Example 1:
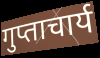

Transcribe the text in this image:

गुप्ताचार्य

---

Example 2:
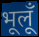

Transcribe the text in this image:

भूलूँ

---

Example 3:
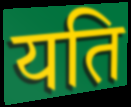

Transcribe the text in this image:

यति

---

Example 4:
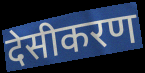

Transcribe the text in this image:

देसीकरण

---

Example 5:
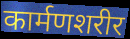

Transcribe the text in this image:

कार्मणशरीर